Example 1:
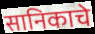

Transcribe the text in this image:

सानिकाचे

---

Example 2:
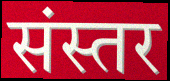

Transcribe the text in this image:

संस्तर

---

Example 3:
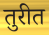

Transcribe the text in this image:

तुरीत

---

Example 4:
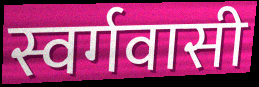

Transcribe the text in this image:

स्वर्गवासी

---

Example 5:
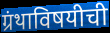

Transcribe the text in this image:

ग्रंथाविषयीची